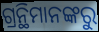
ଗ୍ରନ୍ଥିମାନଙ୍କରୁ